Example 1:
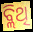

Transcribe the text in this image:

ବ୍ଲିଥି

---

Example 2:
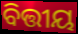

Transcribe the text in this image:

ବିତ୍ତୀୟ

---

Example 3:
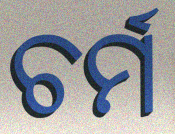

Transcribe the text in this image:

ଚର୍ମ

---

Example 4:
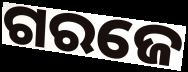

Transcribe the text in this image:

ଗରଜେ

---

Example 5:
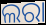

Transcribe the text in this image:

ଲରା